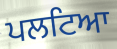
ਪਲਟਿਆ